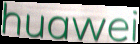
huawei